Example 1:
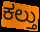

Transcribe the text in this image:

ಕಲ್ತು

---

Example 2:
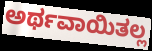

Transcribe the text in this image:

ಅರ್ಥವಾಯಿತಲ್ಲ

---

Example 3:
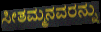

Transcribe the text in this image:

ಸೀತಮ್ಮನವರನ್ನು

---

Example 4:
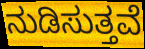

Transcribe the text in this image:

ನುಡಿಸುತ್ತವೆ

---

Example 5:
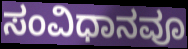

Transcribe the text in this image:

ಸಂವಿಧಾನವೂ